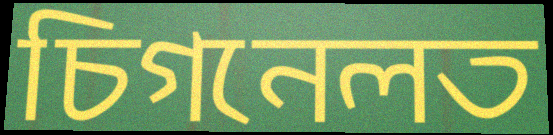
চিগনেলত